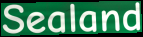
Sealand